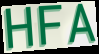
HFA